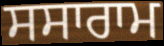
ਸਸਾਰਾਮ